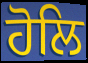
ਹੋਲਿ